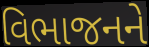
વિભાજનને